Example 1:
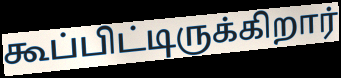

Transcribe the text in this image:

கூப்பிட்டிருக்கிறார்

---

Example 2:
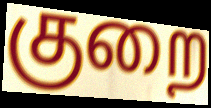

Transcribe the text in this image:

குறை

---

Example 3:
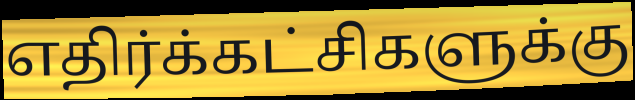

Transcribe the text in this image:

எதிர்க்கட்சிகளுக்கு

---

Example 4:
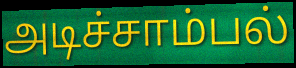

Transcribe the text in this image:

அடிச்சாம்பல்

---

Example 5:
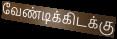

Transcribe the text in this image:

வேண்டிக்கிடக்கு